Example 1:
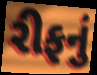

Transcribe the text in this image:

રીફનું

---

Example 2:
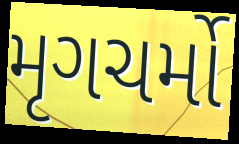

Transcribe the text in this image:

મૃગચર્મો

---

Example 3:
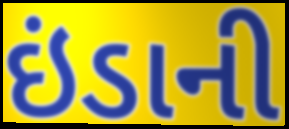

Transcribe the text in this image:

ઇંડાની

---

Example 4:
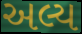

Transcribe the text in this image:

અલ્ય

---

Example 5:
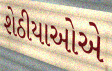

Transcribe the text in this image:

શેઠીયાઓએ